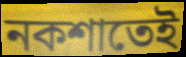
নকশাতেই